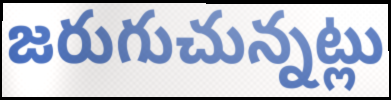
జరుగుచున్నట్లు